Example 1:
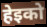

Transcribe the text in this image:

हेइको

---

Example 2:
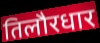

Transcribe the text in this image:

तिलौरधार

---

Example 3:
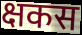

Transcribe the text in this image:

क्षकस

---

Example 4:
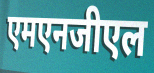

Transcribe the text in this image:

एमएनजीएल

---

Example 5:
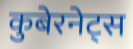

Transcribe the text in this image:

कुबेरनेट्स